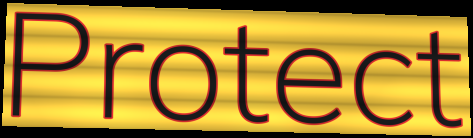
Protect